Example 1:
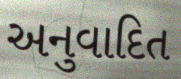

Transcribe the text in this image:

અનુવાદિત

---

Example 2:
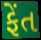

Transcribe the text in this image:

ફેંત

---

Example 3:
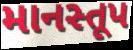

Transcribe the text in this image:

માનસ્તૂપ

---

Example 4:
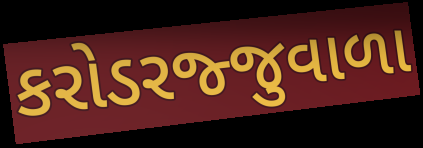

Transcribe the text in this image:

કરોડરજ્જુવાળા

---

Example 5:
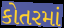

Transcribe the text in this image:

કોતરમાં